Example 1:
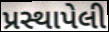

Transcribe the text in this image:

પ્રસ્થાપેલી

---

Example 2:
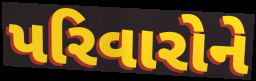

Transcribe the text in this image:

પરિવારોને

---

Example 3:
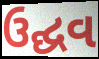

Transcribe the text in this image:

ઉદ્ઘવ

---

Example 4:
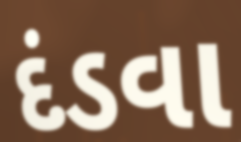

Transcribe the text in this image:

દંડવા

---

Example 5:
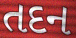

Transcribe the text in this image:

તદન